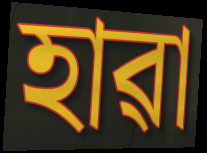
হাৱা